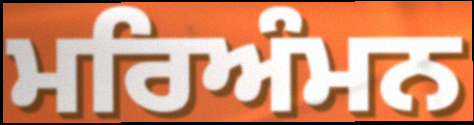
ਮਰਿਅੰਮਨ